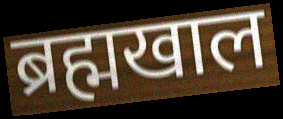
ब्रह्मखाल